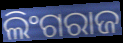
ଲିଂଗରାଜ